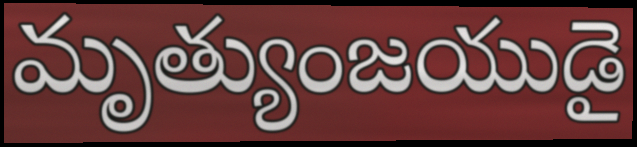
మృత్యుంజయుడై